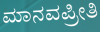
ಮಾನವಪ್ರೀತಿ